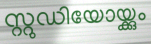
സ്റ്റുഡിയോയ്ക്കും